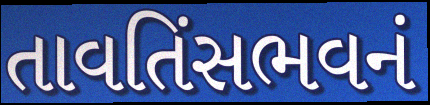
તાવતિંસભવનં